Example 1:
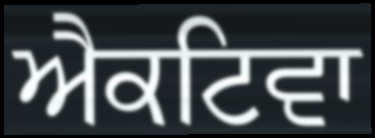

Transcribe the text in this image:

ਐਕਟਿਵਾ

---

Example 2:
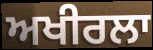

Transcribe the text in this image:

ਅਖੀਰਲਾ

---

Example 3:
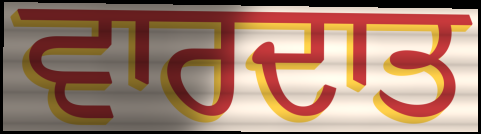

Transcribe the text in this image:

ਵਾਰਦਾਤ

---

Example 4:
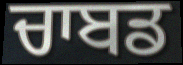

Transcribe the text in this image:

ਚਾਬਡ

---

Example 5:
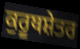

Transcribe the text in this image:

ਕੁਰੂਥਸ਼ੇਤਰ